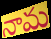
నామ